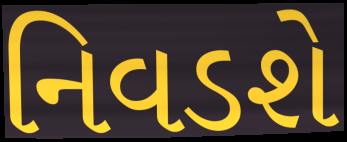
નિવડશે